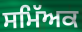
ਸਮਿੱਅਕ